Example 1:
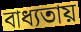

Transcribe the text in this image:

বাধ্যতায়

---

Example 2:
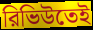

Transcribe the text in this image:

রিভিউতেই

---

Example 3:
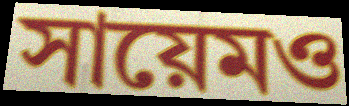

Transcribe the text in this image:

সায়েমও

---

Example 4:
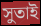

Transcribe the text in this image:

সুতাই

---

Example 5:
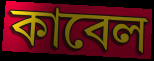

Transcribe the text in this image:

কাবেল